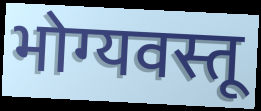
भोग्यवस्तू